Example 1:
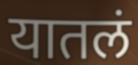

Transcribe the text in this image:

यातलं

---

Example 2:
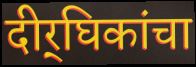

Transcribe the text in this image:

दीर्घिकांचा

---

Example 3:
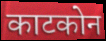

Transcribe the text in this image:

काटकोन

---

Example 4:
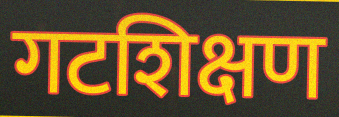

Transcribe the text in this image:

गटशिक्षण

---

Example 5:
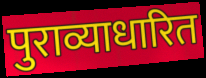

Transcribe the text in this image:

पुराव्याधारित